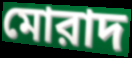
মোরাদ